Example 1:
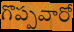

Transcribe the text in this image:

గొప్పవారో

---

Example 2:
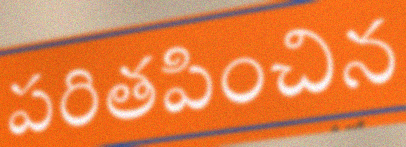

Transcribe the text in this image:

పరితపించిన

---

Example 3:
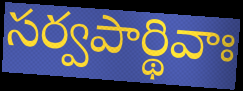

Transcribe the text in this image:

సర్వపార్థివాః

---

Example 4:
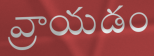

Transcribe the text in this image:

వ్రాయడం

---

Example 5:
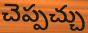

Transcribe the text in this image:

చెప్పచ్చు